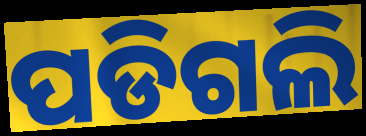
ପଡିଗଲି